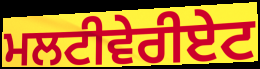
ਮਲਟੀਵੇਰੀਏਟ